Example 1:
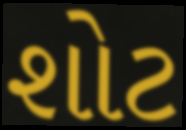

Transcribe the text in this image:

શોટ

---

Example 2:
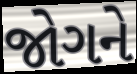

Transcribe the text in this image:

જોગને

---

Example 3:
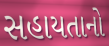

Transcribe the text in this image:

સહાયતાનો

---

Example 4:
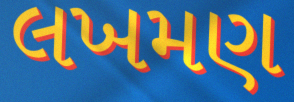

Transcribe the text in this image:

લખમણ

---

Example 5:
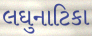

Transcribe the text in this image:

લઘુનાટિકા